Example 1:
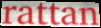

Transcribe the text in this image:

rattan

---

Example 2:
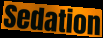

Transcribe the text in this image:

Sedation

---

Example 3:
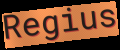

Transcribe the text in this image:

Regius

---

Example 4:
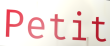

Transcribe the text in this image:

Petit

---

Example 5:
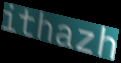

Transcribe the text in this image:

ithazh